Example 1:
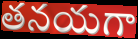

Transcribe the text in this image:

తనయగా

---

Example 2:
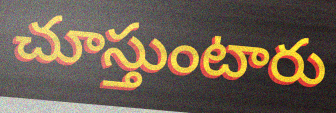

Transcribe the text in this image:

చూస్తుంటారు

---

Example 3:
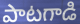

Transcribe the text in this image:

పాటగాడి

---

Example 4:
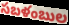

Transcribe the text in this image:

సబళంబుల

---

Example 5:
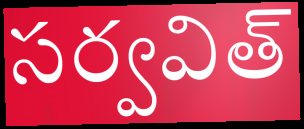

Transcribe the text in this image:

సర్వవిత్